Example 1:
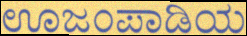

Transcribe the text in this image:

ಊಜಂಪಾಡಿಯ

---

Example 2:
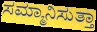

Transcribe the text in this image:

ಸಮ್ಮಾನಿಸುತ್ತಾ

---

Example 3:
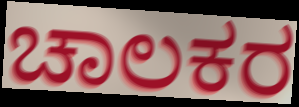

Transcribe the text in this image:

ಚಾಲಕರ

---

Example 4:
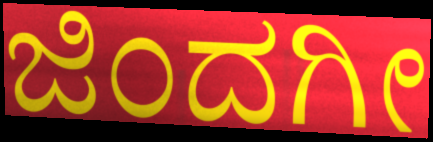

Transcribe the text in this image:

ಜಿಂದಗೀ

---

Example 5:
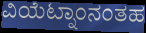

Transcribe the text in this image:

ವಿಯೆಟ್ನಾಂನಂತಹ